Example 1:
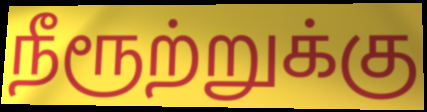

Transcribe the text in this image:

நீரூற்றுக்கு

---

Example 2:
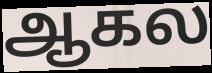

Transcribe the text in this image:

ஆகல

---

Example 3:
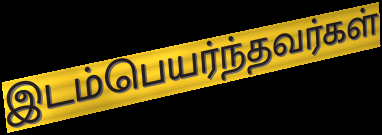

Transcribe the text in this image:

இடம்பெயர்ந்தவர்கள்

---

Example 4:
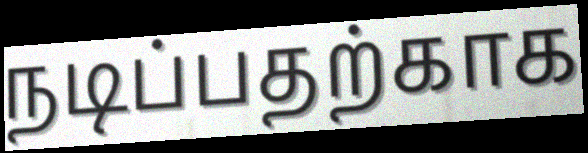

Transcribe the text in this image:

நடிப்பதற்காக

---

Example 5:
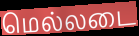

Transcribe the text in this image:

மெல்லடை